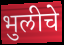
भुलीचे